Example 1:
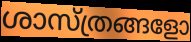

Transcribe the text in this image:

ശാസ്ത്രങ്ങളോ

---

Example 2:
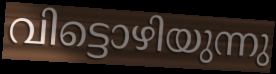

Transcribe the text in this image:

വിട്ടൊഴിയുന്നു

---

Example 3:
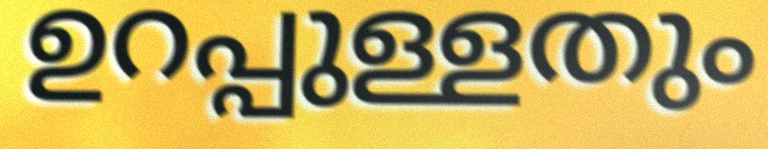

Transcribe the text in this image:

ഉറപ്പുള്ളതും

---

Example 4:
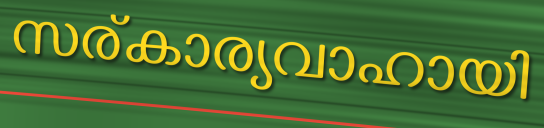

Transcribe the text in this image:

സര്കാര്യവാഹായി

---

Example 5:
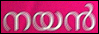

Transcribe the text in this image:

നയൻ